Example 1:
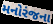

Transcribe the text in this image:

મનોરંજના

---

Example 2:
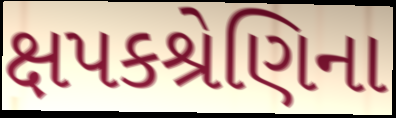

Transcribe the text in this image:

ક્ષપકશ્રેણિના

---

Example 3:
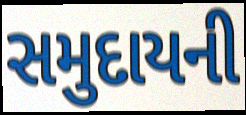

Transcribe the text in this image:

સમુદાયની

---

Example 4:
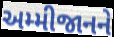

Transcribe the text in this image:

અમ્મીજાનને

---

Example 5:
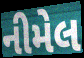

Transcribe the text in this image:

નીમેલ